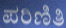
ಪರಿಣಿತಿ